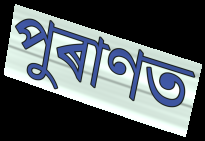
পুৰাণত